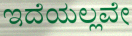
ಇದೆಯಲ್ಲವೇ